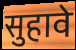
सुहावे